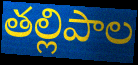
తల్లిపాల